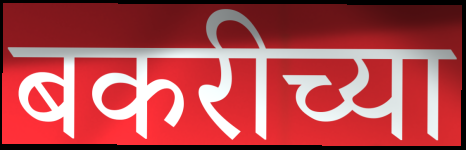
बकरीच्या